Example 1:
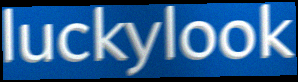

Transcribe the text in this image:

luckylook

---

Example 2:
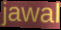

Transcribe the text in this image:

jawal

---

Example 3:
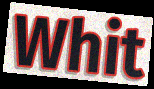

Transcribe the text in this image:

Whit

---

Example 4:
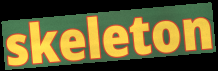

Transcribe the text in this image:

skeleton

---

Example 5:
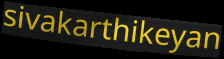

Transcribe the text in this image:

sivakarthikeyan